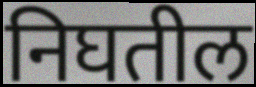
निघतील